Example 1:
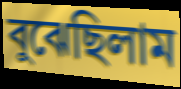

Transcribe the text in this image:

বুঝেছিলাম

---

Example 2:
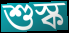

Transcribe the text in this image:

শুস্ক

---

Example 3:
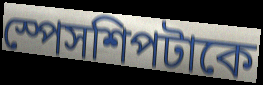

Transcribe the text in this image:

স্পেসশিপটাকে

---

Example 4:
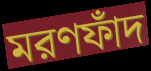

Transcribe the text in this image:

মরণফাঁদ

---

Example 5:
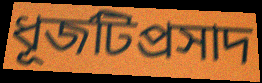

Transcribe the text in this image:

ধূর্জটিপ্রসাদ